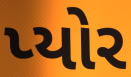
પ્યોર